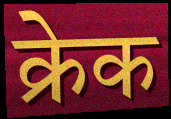
क्रेक